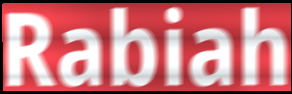
Rabiah